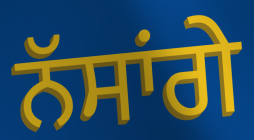
ਨੱਸਾਂਗੇ